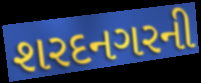
શરદનગરની